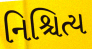
નિશ્ચિત્ય